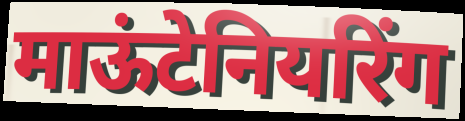
माऊंटेनियरिंग